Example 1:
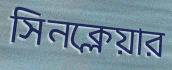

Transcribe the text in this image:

সিনক্লেয়ার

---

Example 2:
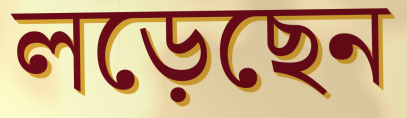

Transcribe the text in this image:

লড়েছেন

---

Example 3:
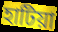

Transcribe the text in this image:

হাটিয়া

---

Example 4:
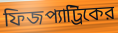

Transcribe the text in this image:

ফিজপ্যাট্রিকের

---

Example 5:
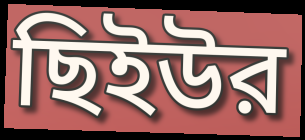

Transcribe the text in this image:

ছিইউর